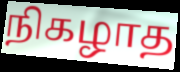
நிகழாத